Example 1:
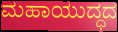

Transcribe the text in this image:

ಮಹಾಯುದ್ಧದ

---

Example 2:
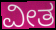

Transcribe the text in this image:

ವೀತ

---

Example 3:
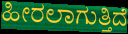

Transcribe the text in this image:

ಹೀರಲಾಗುತ್ತಿದೆ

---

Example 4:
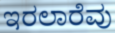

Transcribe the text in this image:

ಇರಲಾರೆವು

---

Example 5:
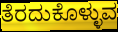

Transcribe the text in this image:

ತೆರದುಕೊಳ್ಳುವ